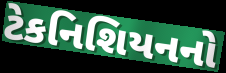
ટેકનિશિયનનો